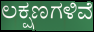
ಲಕ್ಷಣಗಳಿವೆ